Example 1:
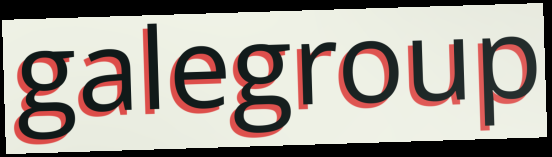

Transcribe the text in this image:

galegroup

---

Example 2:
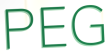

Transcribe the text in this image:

PEG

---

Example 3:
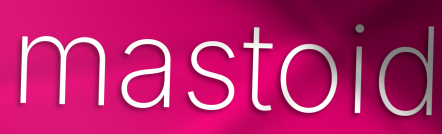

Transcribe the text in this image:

mastoid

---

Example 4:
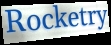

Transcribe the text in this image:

Rocketry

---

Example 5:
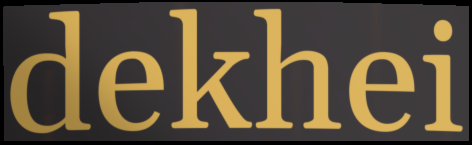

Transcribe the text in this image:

dekhei